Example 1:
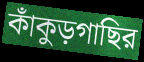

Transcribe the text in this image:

কাঁকুড়গাছির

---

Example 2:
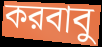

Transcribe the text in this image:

করবাবু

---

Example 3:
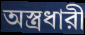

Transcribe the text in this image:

অস্ত্রধারী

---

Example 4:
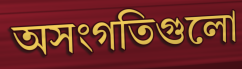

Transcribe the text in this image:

অসংগতিগুলো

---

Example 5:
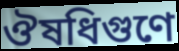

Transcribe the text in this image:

ঔষধিগুণে